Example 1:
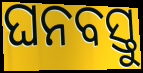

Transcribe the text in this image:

ଘନବସ୍ତୁ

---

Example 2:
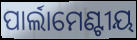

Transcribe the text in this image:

ପାର୍ଲାମେଣ୍ଟୀୟ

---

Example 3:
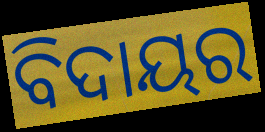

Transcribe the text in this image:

ବିଦାୟର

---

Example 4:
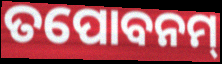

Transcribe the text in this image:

ତପୋବନମ୍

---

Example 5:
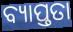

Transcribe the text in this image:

ବ୍ୟାପ୍ତତା